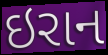
ઇરાન